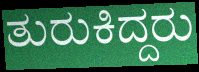
ತುರುಕಿದ್ದರು